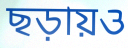
ছড়ায়ও